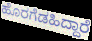
ಹೊರಗೆಡಹಿದ್ದಾರೆ